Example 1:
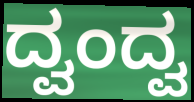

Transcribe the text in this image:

ದ್ವಂದ್ವ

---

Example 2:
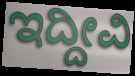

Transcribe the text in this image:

ಇದ್ದೀವಿ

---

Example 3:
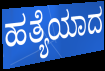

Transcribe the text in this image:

ಹತ್ಯೆಯಾದ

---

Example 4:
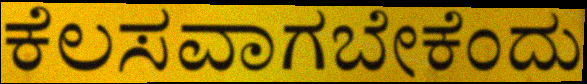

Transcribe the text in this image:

ಕೆಲಸವಾಗಬೇಕೆಂದು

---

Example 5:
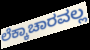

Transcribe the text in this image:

ಲೆಕ್ಕಾಚಾರವಲ್ಲ